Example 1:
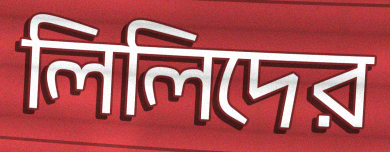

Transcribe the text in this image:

লিলিদের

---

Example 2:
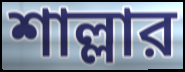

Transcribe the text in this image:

শাল্লার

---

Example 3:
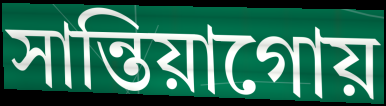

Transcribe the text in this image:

সান্তিয়াগোয়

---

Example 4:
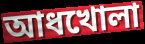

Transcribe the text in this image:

আধখোলা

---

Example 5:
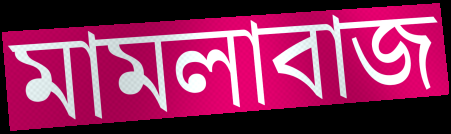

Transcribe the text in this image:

মামলাবাজ